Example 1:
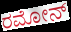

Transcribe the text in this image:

ರಮೋನ್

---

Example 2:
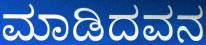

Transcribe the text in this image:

ಮಾಡಿದವನ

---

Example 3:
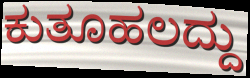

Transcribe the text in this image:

ಕುತೂಹಲದ್ದು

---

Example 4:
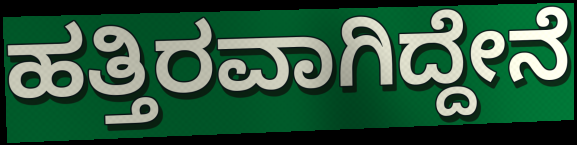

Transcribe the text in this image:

ಹತ್ತಿರವಾಗಿದ್ದೇನೆ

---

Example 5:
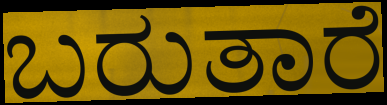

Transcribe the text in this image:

ಬರುತಾರೆ